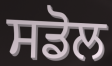
ਸਡੋਲ